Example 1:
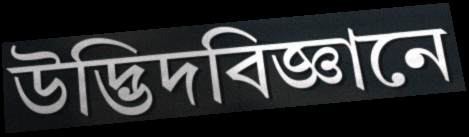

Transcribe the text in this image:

উদ্ভিদবিজ্ঞানে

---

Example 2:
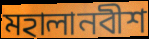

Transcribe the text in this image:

মহালানবীশ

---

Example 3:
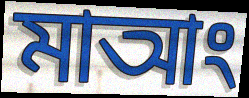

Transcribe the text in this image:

মাআং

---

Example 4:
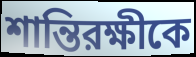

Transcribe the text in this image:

শান্তিরক্ষীকে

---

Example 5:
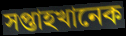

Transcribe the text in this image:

সপ্তাহখানেক